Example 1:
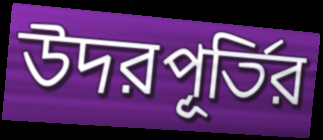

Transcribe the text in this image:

উদরপূর্তির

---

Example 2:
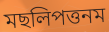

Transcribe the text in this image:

মছলিপত্তনম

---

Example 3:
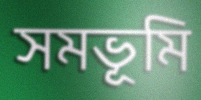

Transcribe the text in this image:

সমভূমি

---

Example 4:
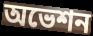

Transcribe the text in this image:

অভেশন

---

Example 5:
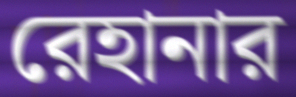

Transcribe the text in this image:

রেহানার